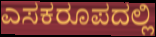
ಎಸಕರೂಪದಲ್ಲಿ